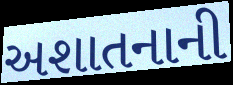
અશાતનાની